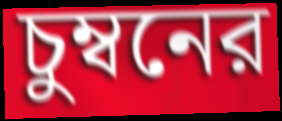
চুম্বনের